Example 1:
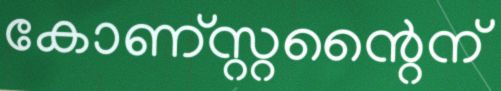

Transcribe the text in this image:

കോണ്സ്റ്റന്റൈന്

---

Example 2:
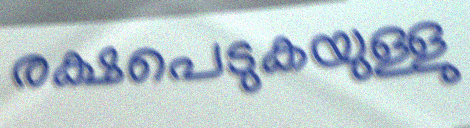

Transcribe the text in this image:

രക്ഷപെടുകയുള്ളു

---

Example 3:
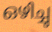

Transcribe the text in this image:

ഒഴിച്ചു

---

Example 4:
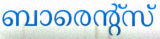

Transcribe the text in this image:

ബാരെന്റ്സ്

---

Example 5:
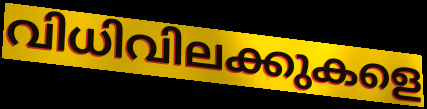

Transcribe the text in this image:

വിധിവിലക്കുകളെ